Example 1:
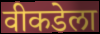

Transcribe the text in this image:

वीकडेला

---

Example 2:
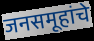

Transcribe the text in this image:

जनसमूहांचे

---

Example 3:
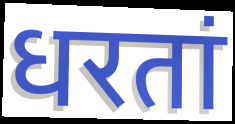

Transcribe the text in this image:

धरतां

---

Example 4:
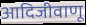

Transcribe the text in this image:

आदिजीवाणू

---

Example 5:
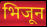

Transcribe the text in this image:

भिजून